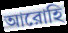
আরোহি